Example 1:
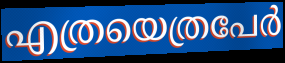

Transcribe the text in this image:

എത്രയെത്രപേർ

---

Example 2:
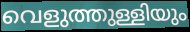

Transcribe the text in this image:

വെളുത്തുള്ളിയും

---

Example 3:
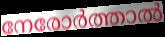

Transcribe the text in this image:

നേരോർത്താൽ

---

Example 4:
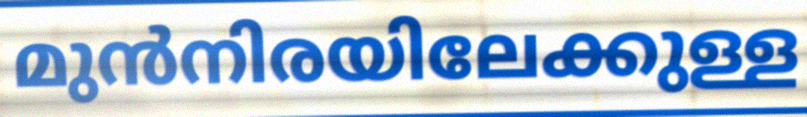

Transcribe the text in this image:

മുൻനിരയിലേക്കുള്ള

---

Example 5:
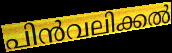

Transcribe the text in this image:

പിൻവലിക്കൽ